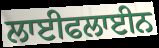
ਲਾਈਫਲਾਈਨ